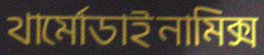
থার্মোডাইনামিক্স